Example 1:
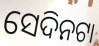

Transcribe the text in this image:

ସେଦିନଟା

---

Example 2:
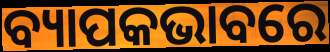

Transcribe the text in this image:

ବ୍ୟାପକଭାବରେ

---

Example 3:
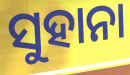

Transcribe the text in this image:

ସୁହାନା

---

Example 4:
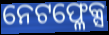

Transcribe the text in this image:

ନେଟଫ୍ଳେକ୍ସ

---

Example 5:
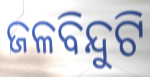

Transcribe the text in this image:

ଜଳବିନ୍ଦୁଟି